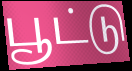
பூட்டு